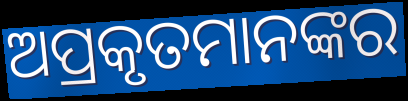
ଅପ୍ରକୃତମାନଙ୍କର